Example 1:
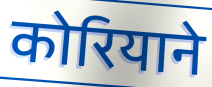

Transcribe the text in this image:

कोरियाने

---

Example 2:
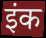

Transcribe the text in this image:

इंक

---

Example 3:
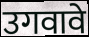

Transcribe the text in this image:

उगवावे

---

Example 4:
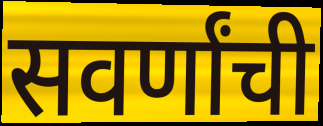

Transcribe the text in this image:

सवर्णांची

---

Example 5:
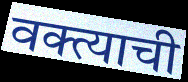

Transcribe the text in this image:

वक्त्याची